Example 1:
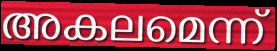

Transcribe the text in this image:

അകലമെന്ന്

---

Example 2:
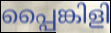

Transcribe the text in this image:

പ്പൈങ്കിളി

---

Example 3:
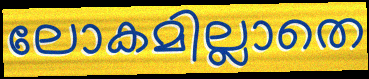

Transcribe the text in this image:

ലോകമില്ലാതെ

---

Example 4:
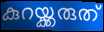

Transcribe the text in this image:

കുറയ്ക്കരുത്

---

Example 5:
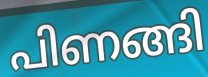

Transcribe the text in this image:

പിണങ്ങി